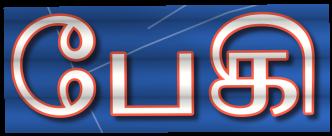
பேகி